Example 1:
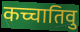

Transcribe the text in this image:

कच्चातिवु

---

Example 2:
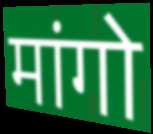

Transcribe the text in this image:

मांगो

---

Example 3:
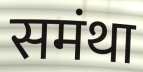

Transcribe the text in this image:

समंथा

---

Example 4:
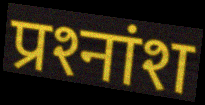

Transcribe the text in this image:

प्रश्‍नांश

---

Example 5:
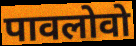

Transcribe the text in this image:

पावलोवो